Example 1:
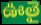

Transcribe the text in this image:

ఊతై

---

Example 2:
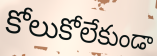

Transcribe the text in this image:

కోలుకోలేకుండా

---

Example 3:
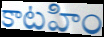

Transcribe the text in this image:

కాటహిం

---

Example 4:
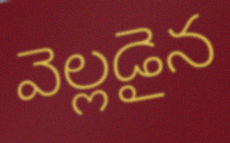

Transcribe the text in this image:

వెల్లడైన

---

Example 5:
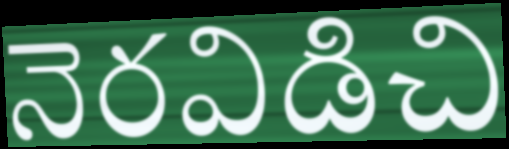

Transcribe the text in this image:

నెరవిడిచి